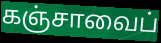
கஞ்சாவைப்